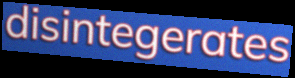
disintegerates